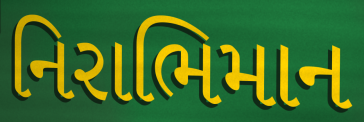
નિરાભિમાન